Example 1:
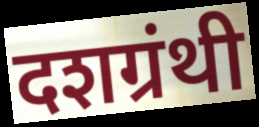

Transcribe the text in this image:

दशग्रंथी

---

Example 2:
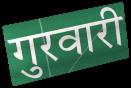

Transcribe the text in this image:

गुरवारी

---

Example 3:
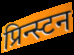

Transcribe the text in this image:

प्रिन्स्टन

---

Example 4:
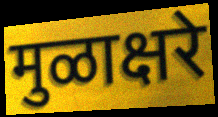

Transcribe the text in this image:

मुळाक्षरे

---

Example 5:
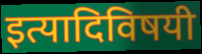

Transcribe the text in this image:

इत्यादिविषयी